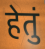
हेतुं